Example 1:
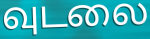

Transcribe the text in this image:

வுடலை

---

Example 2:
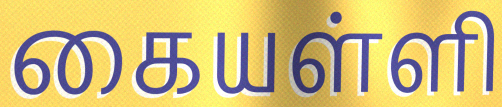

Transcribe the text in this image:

கையள்ளி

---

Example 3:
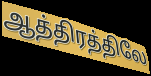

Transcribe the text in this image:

ஆத்திரத்திலே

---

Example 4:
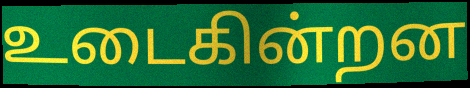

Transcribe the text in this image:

உடைகின்றன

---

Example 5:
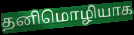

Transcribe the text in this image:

தனிமொழியாக